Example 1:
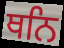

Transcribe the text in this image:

ਥਨਿ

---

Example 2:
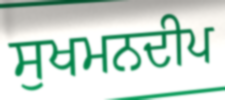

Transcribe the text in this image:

ਸੁਖਮਨਦੀਪ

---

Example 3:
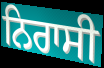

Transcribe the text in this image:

ਨਿਰਾਸੀ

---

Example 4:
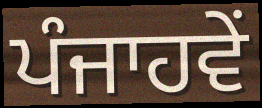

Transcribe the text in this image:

ਪੰਜਾਹਵੇਂ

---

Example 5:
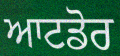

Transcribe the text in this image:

ਆਟਡੋਰ